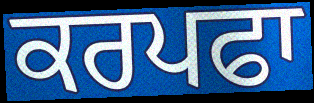
ਕਰਪਫਾ